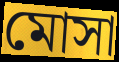
মোসা